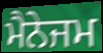
ਮੈਨੇਜਮ